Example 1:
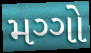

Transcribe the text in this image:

મગ્ગો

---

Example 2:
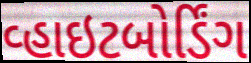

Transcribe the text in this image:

વ્હાઇટબોર્ડિંગ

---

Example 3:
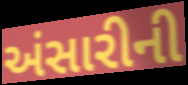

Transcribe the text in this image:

અંસારીની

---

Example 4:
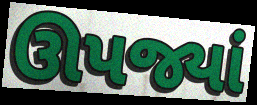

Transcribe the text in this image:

ઊપજ્યાં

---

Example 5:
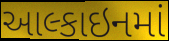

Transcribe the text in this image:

આલ્કાઇનમાં